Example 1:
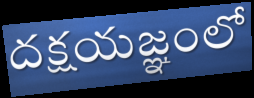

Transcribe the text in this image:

దక్షయజ్ఞంలో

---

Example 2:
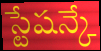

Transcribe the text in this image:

స్టేషన్కే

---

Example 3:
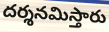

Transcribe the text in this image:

దర్శనమిస్తారు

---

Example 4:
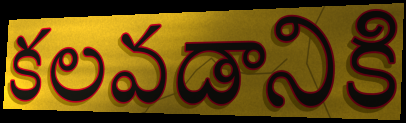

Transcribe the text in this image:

కలవడానికి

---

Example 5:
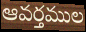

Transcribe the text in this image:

ఆవర్తముల